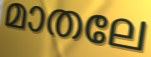
മാതലേ